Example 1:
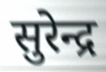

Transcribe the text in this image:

सुरेन्द्र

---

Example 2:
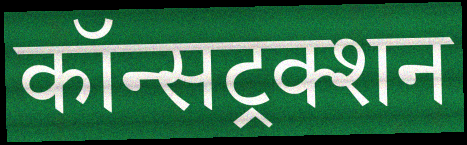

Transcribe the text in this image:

कॉन्सट्रक्शन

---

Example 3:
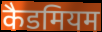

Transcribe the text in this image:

कैडमियम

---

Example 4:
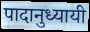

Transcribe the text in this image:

पादानुध्यायी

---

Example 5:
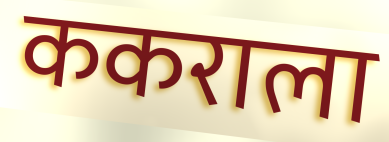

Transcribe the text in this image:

ककराला